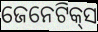
ଜେନେଟିକ୍‌ସ